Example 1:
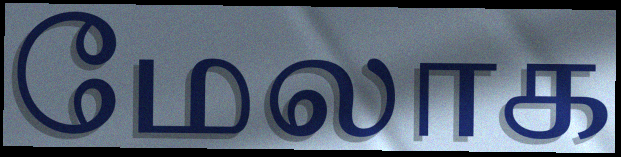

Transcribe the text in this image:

மேலாக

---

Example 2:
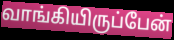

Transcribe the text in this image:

வாங்கியிருப்பேன்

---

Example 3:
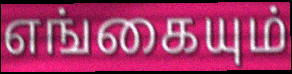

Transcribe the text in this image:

எங்கையும்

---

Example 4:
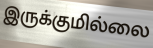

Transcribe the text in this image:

இருக்குமில்லை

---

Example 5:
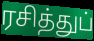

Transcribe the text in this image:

ரசித்துப்